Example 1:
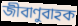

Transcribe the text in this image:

জীবাণুবাহক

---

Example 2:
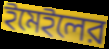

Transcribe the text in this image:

ইমেইলের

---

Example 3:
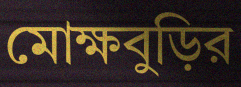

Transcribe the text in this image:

মোক্ষবুড়ির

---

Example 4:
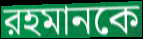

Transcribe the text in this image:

রহমানকে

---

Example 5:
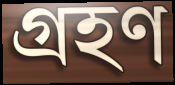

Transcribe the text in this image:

গ্রহণ